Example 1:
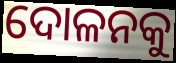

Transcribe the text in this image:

ଦୋଳନକୁ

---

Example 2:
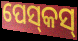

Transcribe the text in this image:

ପେସ୍‌କସ୍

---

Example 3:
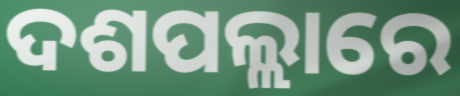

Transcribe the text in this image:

ଦଶପଲ୍ଲାରେ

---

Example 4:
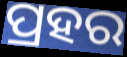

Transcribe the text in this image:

ପ୍ରହର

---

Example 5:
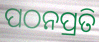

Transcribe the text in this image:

ପଠନପ୍ରତି